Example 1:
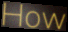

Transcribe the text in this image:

How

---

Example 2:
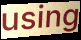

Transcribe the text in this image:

using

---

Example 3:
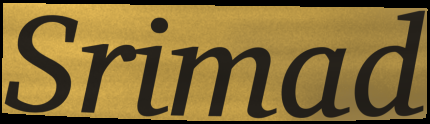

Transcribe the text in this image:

Srimad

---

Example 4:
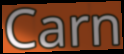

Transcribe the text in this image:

Carn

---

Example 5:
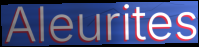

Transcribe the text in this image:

Aleurites